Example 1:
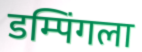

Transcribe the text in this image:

डम्पिंगला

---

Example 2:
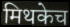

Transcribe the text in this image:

मिथकेच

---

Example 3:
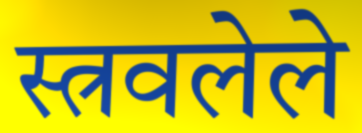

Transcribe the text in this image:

स्त्रवलेले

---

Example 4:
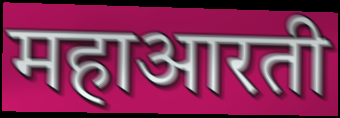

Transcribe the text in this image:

महाआरती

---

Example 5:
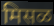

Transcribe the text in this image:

मिसळ